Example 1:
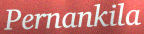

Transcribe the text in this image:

Pernankila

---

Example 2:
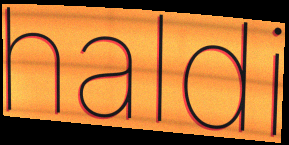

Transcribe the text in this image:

haldi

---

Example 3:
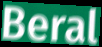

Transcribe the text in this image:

Beral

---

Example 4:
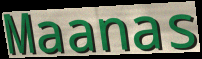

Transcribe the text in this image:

Maanas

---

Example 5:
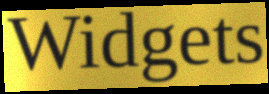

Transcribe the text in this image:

Widgets